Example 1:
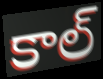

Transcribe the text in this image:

కాల్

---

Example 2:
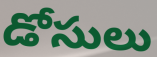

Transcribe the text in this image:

డోసులు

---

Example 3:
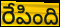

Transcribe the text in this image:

రేపింది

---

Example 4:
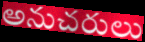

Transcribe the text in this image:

అనుచరులు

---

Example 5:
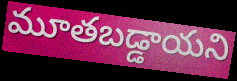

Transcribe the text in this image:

మూతబడ్డాయని